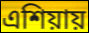
এশিয়ায়